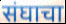
संघाचा